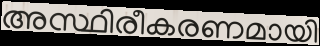
അസ്ഥിരീകരണമായി